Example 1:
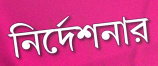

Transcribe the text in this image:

নির্দেশনার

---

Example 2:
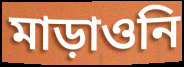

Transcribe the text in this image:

মাড়াওনি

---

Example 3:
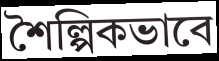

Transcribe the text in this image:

শৈল্পিকভাবে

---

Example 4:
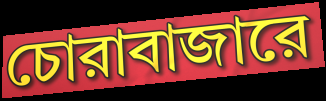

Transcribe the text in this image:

চোরাবাজারে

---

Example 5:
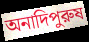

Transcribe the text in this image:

অনাদিপুরুষ